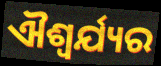
ଐଶ୍ଵର୍ଯ୍ୟର